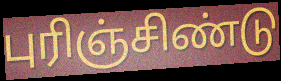
புரிஞ்சிண்டு